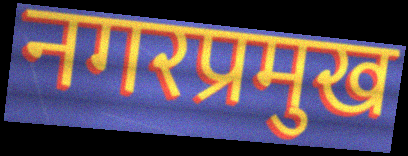
नगरप्रमुख